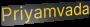
Priyamvada